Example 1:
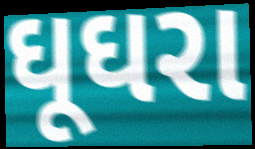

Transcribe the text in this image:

ઘૂઘરા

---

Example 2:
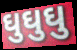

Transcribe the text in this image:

ઘુઘુઘુ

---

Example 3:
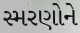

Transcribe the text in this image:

સ્મરણોને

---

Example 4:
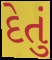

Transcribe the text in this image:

દેતું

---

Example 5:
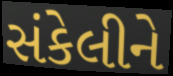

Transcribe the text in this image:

સંકેલીને